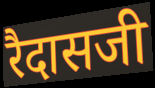
रैदासजी